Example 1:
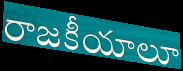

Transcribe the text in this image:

రాజకీయాలూ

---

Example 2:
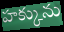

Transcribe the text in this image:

హక్కును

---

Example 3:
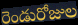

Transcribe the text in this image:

రెండురోజుల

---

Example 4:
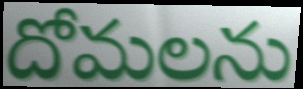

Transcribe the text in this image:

దోమలను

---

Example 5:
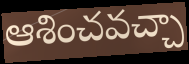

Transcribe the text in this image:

ఆశించవచ్చా